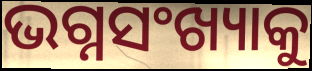
ଭଗ୍ନସଂଖ୍ୟାକୁ